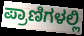
ಪ್ರಾಣಿಗಳಲ್ಲಿ